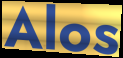
Alos